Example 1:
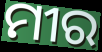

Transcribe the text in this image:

ମୀର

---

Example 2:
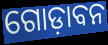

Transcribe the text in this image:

ଗୋଡ଼ାବନ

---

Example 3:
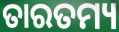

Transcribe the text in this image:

ତାରତମ୍ୟ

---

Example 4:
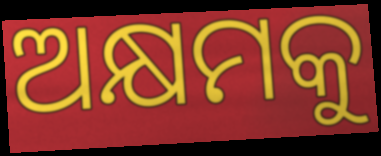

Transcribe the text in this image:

ଅକ୍ଷମକୁ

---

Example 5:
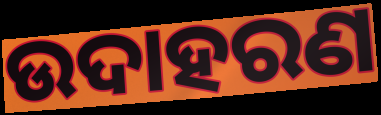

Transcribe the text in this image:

ଉଦାହରଣ